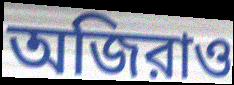
অজিরাও